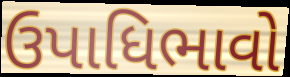
ઉપાધિભાવો